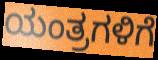
ಯಂತ್ರಗಳಿಗೆ